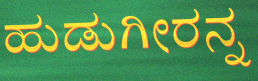
ಹುಡುಗೀರನ್ನ